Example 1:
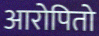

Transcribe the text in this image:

आरोपितो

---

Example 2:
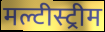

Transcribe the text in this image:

मल्टीस्ट्रीम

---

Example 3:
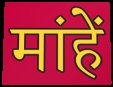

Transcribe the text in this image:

मांहें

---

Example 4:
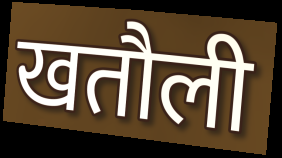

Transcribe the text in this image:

खतौली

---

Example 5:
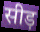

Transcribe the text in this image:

सीड़